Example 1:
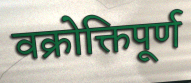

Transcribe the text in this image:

वक्रोक्तिपूर्ण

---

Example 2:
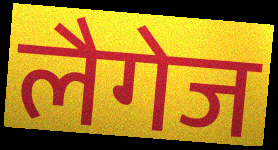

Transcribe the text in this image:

लैगेज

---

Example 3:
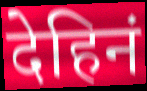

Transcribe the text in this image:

देहिनं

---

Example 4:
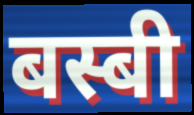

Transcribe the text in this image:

बस्बी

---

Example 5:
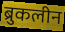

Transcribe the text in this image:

ब्रुकलीन